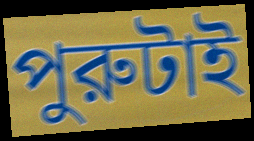
পুরুটাই